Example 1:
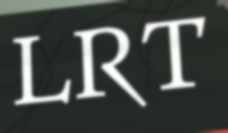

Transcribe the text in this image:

LRT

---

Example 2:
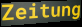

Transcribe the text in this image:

Zeitung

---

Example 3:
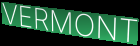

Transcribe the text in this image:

VERMONT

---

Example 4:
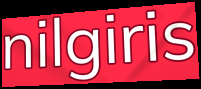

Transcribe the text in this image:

nilgiris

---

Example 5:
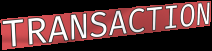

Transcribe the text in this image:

TRANSACTION